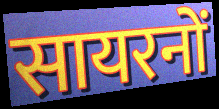
सायरनों